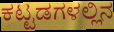
ಕಟ್ಟಡಗಳಲ್ಲಿನ